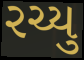
રચ્યુ